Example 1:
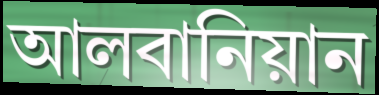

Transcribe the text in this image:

আলবানিয়ান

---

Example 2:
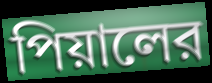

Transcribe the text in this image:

পিয়ালের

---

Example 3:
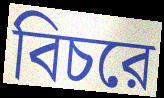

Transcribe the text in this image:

বিচরে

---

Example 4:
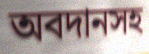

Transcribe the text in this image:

অবদানসহ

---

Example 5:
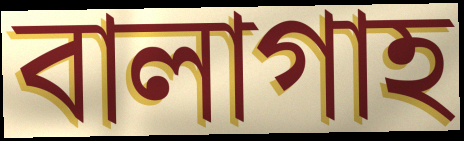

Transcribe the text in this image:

বালাগাহ